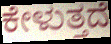
ಕೇಳುತ್ತದೆ